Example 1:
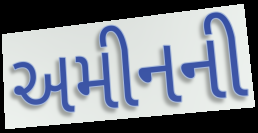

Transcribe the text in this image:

અમીનની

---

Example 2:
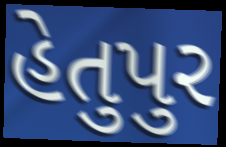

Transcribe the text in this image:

હેતુપુર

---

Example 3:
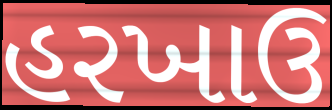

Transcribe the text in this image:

હરખાઉ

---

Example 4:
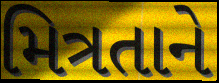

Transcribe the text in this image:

મિત્રતાને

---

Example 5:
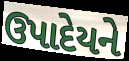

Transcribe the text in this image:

ઉપાદેયને